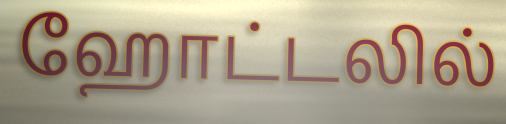
ஹோட்டலில்